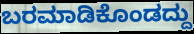
ಬರಮಾಡಿಕೊಂಡದ್ದು